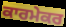
ਕਾਰਮੇਕਰ